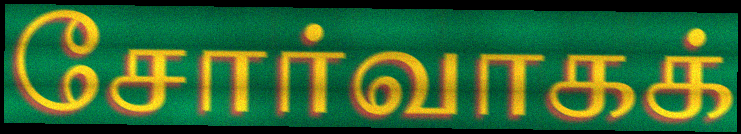
சோர்வாகக்